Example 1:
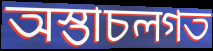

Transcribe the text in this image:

অস্তাচলগত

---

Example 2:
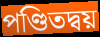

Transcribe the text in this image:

পণ্ডিতদ্বয়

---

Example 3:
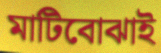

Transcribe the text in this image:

মাটিবোঝাই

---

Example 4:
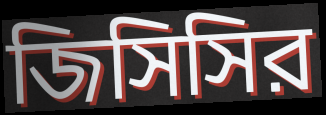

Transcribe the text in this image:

জিসিসির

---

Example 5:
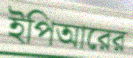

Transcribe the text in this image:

ইপিআরের